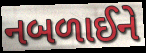
નબળાઈને